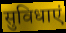
सुविधाएं